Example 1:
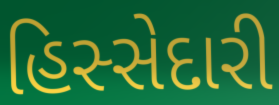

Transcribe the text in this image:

હિસ્સેદારી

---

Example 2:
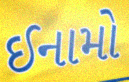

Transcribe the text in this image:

ઈનામો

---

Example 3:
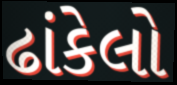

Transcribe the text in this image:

ઢાંકેલો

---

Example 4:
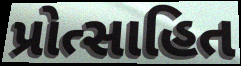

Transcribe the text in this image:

પ્રોત્સાહિત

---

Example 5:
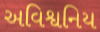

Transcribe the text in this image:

અવિશ્વનિય